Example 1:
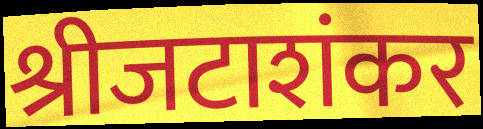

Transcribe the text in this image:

श्रीजटाशंकर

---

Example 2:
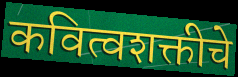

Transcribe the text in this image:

कवित्वशक्तीचे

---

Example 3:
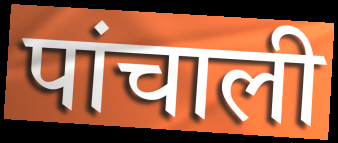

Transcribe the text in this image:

पांचाली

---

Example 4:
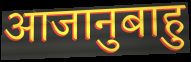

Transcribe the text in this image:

आजानुबाहु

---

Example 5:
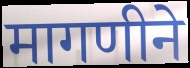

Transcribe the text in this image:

मागणीने